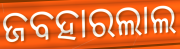
ଜବହାରଲାଲ